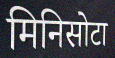
मिनिसोटा